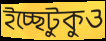
ইচ্ছেটুকুও